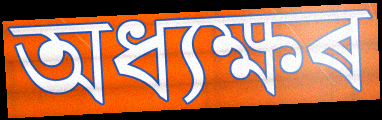
অধ্যক্ষৰ